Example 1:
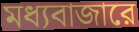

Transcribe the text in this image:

মধ্যবাজারে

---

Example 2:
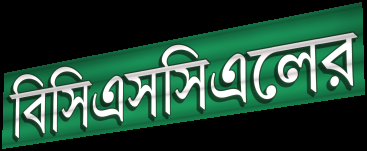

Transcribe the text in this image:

বিসিএসসিএলের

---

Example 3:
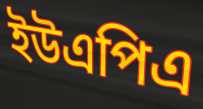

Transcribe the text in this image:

ইউএপিএ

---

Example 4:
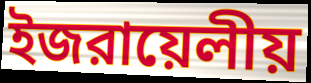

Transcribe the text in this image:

ইজরায়েলীয়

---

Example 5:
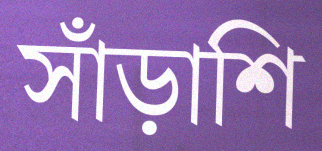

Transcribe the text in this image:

সাঁড়াশি